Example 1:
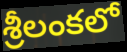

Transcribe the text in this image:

శ్రీలంకలో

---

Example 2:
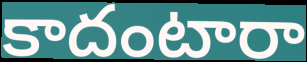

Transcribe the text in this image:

కాదంటారా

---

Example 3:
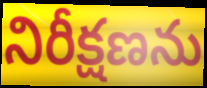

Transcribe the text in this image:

నిరీక్షణను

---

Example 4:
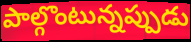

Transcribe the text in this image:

పాల్గొంటున్నప్పుడు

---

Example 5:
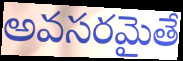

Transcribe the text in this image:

అవసరమైతే